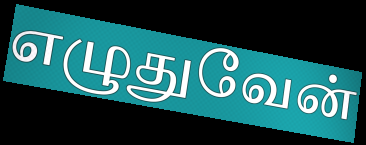
எழுதுவேன்